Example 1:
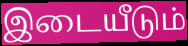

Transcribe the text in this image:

இடையீடும்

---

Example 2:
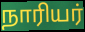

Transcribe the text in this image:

நாரியர்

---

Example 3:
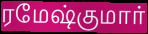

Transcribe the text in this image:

ரமேஷ்குமார்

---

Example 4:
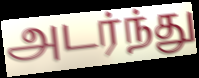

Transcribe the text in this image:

அடர்ந்து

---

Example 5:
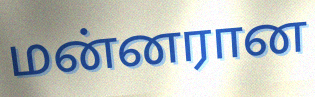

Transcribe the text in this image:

மன்னரான